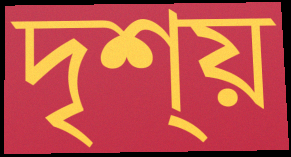
দৃশ্য়